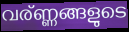
വര്ണ്ണങ്ങളുടെ